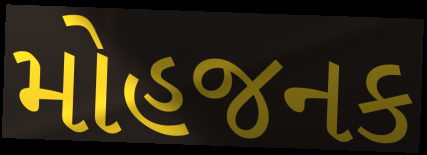
મોહજનક